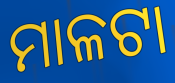
ମାଳଟା